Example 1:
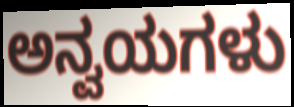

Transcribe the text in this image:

ಅನ್ವಯಗಳು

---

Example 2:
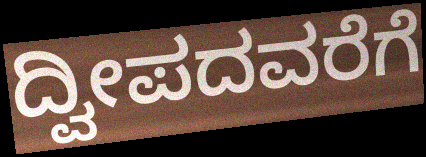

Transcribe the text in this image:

ದ್ವೀಪದವರೆಗೆ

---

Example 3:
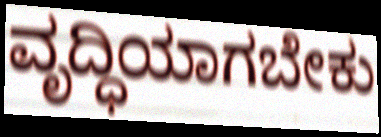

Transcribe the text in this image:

ವೃದ್ಧಿಯಾಗಬೇಕು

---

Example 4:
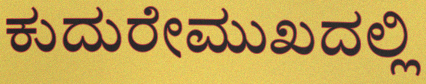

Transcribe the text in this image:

ಕುದುರೇಮುಖದಲ್ಲಿ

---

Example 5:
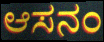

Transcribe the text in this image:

ಆಸನಂ